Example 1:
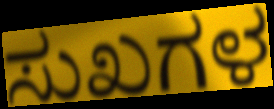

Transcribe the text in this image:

ಸುಖಗಳ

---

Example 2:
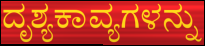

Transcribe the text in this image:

ದೃಶ್ಯಕಾವ್ಯಗಳನ್ನು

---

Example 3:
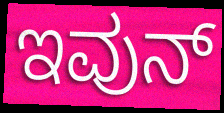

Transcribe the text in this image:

ಇವುನ್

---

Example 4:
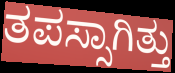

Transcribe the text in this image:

ತಪಸ್ಸಾಗಿತ್ತು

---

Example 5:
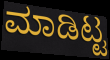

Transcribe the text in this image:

ಮಾಡಿಟ್ಟ